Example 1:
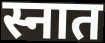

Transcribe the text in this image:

स्नात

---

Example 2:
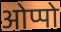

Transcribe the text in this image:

ओप्पो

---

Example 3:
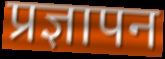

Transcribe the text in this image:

प्रज्ञापन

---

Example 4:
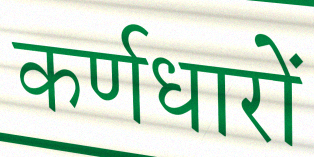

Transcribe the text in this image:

कर्णधारों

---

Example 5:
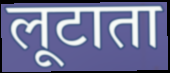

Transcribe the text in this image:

लूटाता